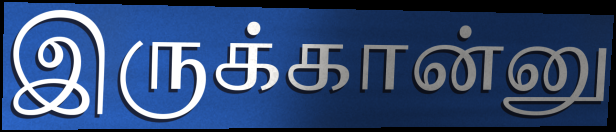
இருக்கான்னு